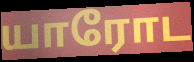
யாரோட